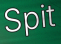
Spit